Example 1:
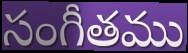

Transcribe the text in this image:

సంగీతము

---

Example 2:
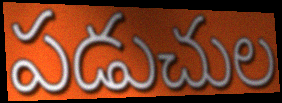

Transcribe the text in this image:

పడుచుల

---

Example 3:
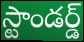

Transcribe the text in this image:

స్టాండర్డ్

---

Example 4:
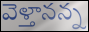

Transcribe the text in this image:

వెళ్తానన్న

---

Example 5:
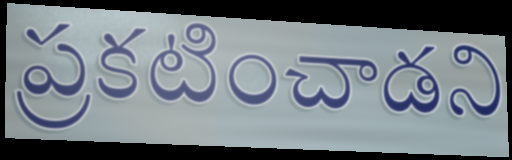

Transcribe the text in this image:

ప్రకటించాడని